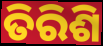
ତିରିଶି